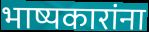
भाष्यकारांना